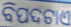
ବିପଦଟାଏ